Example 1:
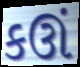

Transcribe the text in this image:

કઊં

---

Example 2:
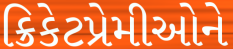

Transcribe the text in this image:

ક્રિકેટપ્રેમીઓને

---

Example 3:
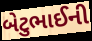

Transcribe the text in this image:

બેટુભાઈની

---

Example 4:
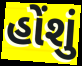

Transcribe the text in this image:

હોંશું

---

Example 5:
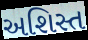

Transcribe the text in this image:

અશિસ્ત